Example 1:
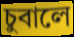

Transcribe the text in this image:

চুবালে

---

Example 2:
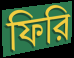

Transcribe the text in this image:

ফিরি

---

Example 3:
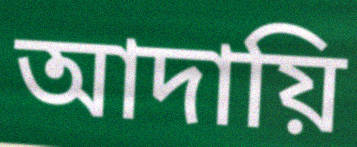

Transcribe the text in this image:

আদায়ি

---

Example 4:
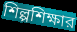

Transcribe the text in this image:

শিল্পশিক্ষার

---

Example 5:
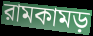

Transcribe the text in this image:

রামকামড়